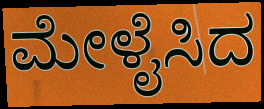
ಮೇಳೈಸಿದ